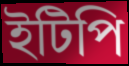
ইটিপি